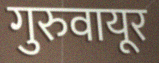
गुरुवायूर